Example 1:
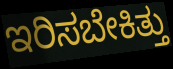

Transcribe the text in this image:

ಇರಿಸಬೇಕಿತ್ತು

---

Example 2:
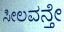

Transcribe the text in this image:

ಸೀಲವನ್ತೇ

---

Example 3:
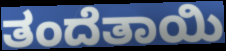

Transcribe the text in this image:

ತಂದೆತಾಯಿ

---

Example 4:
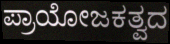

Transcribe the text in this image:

ಪ್ರಾಯೋಜಕತ್ವದ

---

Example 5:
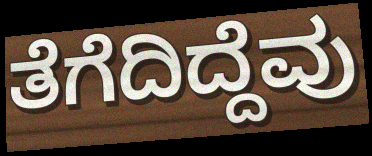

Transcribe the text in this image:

ತೆಗೆದಿದ್ದೆವು